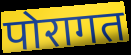
पोरागत